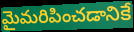
మైమరిపించడానికే